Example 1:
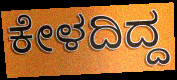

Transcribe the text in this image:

ಕೇಳದಿದ್ದ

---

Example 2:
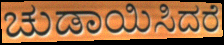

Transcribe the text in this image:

ಚುಡಾಯಿಸಿದರೆ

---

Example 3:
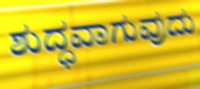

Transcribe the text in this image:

ಶುದ್ಧವಾಗುವುದು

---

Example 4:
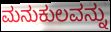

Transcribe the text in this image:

ಮನುಕುಲವನ್ನು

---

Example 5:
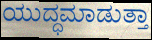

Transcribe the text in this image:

ಯುದ್ಧಮಾಡುತ್ತಾ